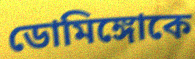
ডোমিঙ্গোকে